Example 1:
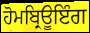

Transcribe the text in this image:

ਹੋਮਬ੍ਰਿਊਇੰਗ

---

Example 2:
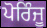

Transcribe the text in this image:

ਪੋਰਿੰਜੂ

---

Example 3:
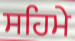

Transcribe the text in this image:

ਸਹਿਮੇ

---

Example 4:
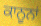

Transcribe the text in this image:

ਕਾਨੂਨਾਂ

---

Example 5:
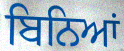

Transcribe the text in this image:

ਬਿਨਿਆਂ